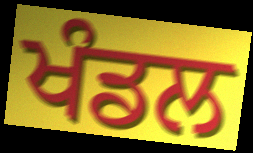
ਖੰਡਲ